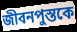
জীবনপুস্তকে